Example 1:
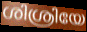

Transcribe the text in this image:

ശിശ്രിയേ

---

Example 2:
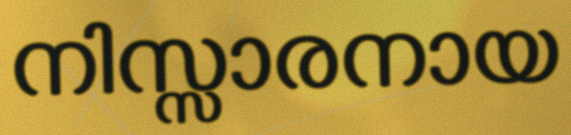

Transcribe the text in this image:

നിസ്സാരനായ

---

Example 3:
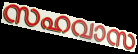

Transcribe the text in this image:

സഹവാസ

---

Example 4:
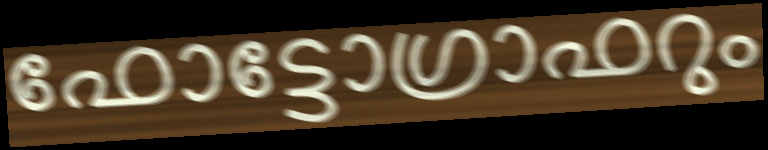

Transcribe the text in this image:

ഫോട്ടോഗ്രാഫറും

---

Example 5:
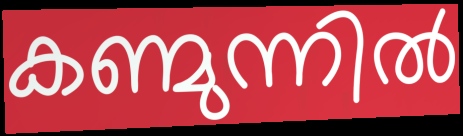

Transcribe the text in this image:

കണ്മുന്നിൽ